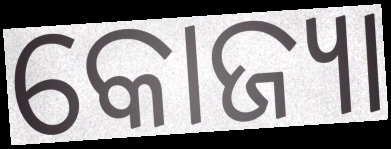
କୋଜ୍ୟା